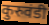
कुरुवंडी